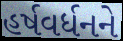
હર્ષવર્ધનને